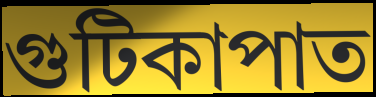
গুটিকাপাত